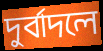
দুর্বাদলে